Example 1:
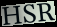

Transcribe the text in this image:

HSR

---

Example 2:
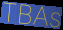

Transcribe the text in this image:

TBAs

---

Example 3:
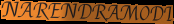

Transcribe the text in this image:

NARENDRAMODI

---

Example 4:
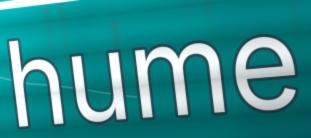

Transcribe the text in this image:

hume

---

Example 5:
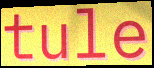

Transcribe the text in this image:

tule